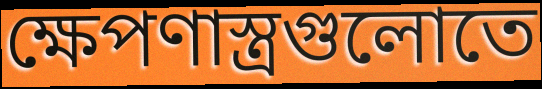
ক্ষেপণাস্ত্রগুলোতে